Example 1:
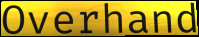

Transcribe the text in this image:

Overhand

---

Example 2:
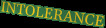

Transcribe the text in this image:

INTOLERANCE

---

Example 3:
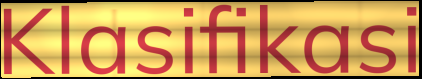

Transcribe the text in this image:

Klasifikasi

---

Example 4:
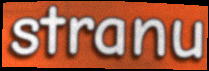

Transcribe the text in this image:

stranu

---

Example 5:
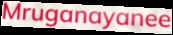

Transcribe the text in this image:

Mruganayanee